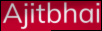
Ajitbhai